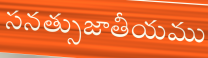
సనత్సుజాతీయము